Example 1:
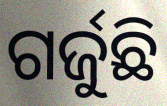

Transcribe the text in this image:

ଗର୍ଜୁଛି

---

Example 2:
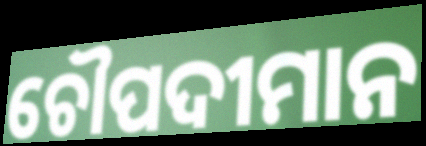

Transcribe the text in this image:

ଚୌପଦୀମାନ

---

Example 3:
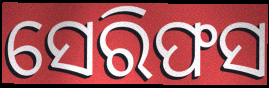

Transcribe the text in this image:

ସେରିଫସ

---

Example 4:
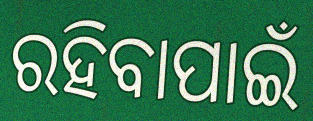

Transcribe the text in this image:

ରହିବାପାଇଁ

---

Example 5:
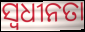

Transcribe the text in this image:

ସ୍ୱଧୀନତା